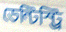
ডেন্টিস্ট্রি